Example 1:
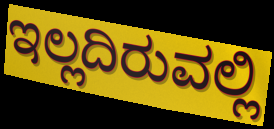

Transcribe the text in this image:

ಇಲ್ಲದಿರುವಲ್ಲಿ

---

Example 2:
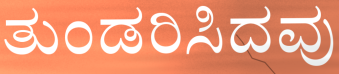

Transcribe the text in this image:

ತುಂಡರಿಸಿದವು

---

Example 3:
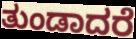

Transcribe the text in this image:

ತುಂಡಾದರೆ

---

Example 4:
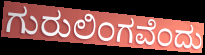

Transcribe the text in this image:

ಗುರುಲಿಂಗವೆಂದು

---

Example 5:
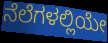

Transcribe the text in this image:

ನೆಲೆಗಳಲ್ಲಿಯೇ